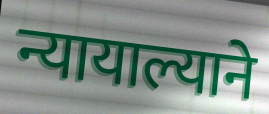
न्यायाल्याने